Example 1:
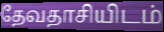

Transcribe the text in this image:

தேவதாசியிடம்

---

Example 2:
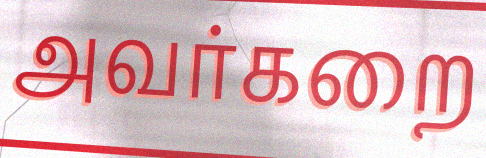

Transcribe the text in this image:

அவர்கறை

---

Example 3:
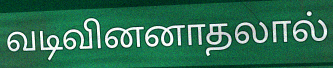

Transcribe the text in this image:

வடிவினனாதலால்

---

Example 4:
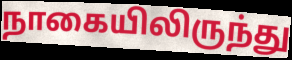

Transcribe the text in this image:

நாகையிலிருந்து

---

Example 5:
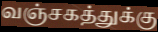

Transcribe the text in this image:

வஞ்சகத்துக்கு